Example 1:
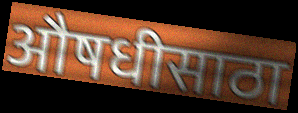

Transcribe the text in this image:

औषधीसाठा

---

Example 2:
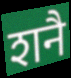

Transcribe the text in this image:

शनै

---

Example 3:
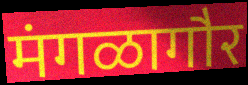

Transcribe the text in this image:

मंगळागौर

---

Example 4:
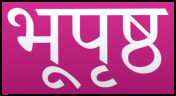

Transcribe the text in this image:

भूपृष्ठ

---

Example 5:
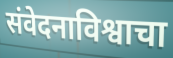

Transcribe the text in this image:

संवेदनाविश्वाचा